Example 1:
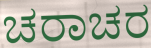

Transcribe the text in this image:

ಚರಾಚರ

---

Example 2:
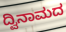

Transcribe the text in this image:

ದ್ವಿನಾಮದ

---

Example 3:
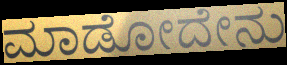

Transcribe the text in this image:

ಮಾಡೋದೇನು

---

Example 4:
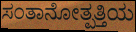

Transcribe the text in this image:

ಸಂತಾನೋತ್ಪತ್ತಿಯ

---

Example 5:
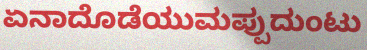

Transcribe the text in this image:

ಏನಾದೊಡೆಯುಮಪ್ಪುದುಂಟು